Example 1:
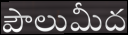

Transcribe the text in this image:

పౌలుమీద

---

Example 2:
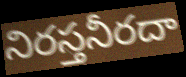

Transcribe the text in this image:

నిరస్తనీరదా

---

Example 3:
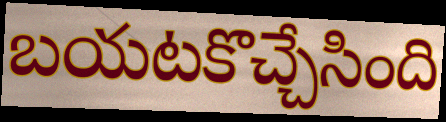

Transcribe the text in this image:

బయటకొచ్చేసింది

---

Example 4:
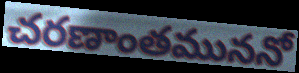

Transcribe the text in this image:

చరణాంతముననో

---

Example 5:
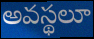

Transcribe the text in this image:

అవస్థలూ